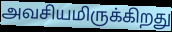
அவசியமிருக்கிறது